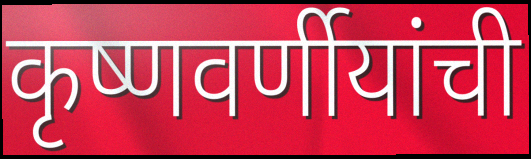
कृष्णवर्णीयांची